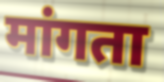
मांगता